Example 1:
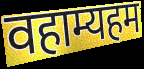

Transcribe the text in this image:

वहाम्यहम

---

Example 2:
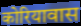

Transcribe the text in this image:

कोरियावास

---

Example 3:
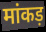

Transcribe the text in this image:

मांकड़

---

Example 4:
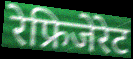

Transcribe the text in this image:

रेफ्रिजेरेट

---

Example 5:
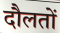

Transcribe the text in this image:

दौलतों